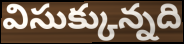
విసుక్కున్నది